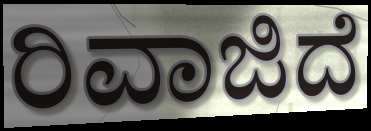
ರಿವಾಜಿದೆ